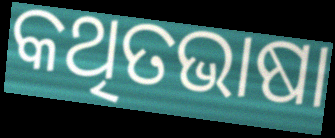
କଥିତଭାଷା